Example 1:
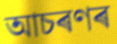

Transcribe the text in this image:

আচৰণৰ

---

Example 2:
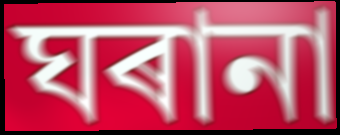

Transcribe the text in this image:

ঘৰানা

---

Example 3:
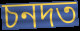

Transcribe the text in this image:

চনদত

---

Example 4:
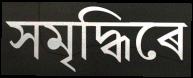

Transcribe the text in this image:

সমৃদ্ধিৰে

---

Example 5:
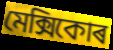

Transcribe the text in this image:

মেক্সিকোৰ